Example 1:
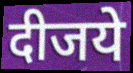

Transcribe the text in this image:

दीजये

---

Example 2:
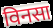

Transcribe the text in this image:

विनसा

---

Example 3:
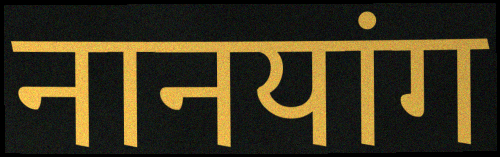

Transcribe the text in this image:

नानयांग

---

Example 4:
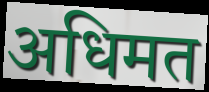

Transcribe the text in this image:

अधिमत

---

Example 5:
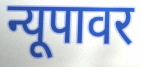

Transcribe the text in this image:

न्यूपावर